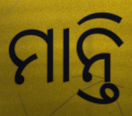
ମାନ୍ତି